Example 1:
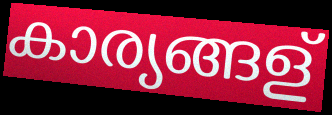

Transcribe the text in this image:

കാര്യങ്ങള്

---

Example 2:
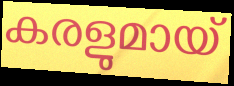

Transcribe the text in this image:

കരളുമായ്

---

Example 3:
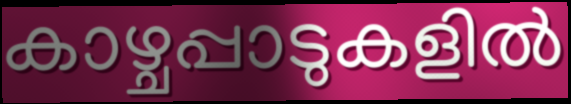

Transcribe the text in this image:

കാഴ്ചപ്പാടുകളിൽ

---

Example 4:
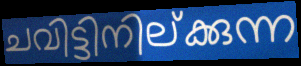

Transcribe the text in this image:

ചവിട്ടിനില്ക്കുന്ന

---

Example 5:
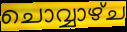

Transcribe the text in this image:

ചൊവ്വാഴ്‌ച